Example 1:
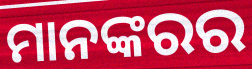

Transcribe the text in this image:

ମାନଙ୍କରର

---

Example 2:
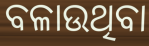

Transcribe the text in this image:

ବଳାଉଥିବା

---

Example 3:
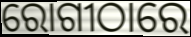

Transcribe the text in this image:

ରୋଗୀଠାରେ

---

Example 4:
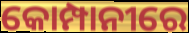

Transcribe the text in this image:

କୋମ୍ପାନୀରେ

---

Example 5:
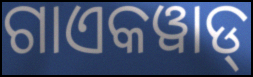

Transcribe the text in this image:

ଗାଏକୱାଡ୍